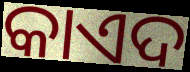
କାଏଦ